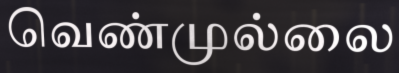
வெண்முல்லை